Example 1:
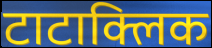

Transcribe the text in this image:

टाटाक्लिक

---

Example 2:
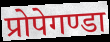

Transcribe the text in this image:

प्रोपेगण्डा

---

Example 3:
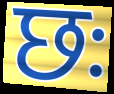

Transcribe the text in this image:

छः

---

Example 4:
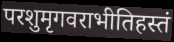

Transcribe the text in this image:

परशुमृगवराभीतिहस्तं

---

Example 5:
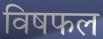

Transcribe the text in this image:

विषफल